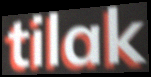
tilak